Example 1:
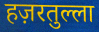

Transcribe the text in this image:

हज़रतुल्ला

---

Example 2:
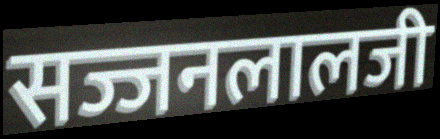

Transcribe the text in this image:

सज्जनलालजी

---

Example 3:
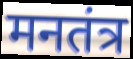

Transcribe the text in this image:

मनतंत्र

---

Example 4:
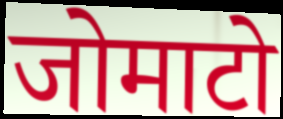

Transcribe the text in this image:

जोमाटो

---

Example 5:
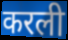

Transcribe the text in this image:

करली